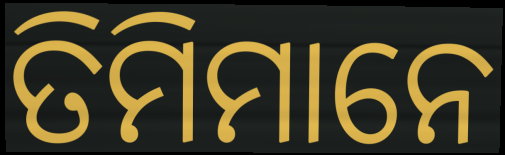
ତିମିମାନେ